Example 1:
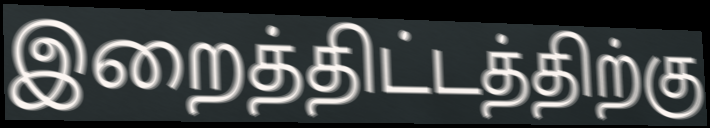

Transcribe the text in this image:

இறைத்திட்டத்திற்கு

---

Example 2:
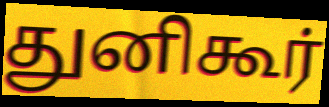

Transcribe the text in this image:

துனிகூர்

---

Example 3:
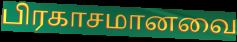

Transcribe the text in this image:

பிரகாசமானவை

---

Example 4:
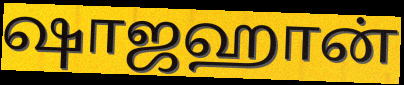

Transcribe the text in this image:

ஷாஜஹான்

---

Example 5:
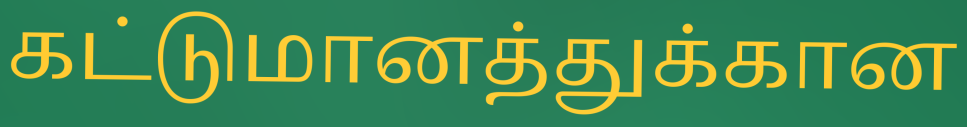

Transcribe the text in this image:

கட்டுமானத்துக்கான